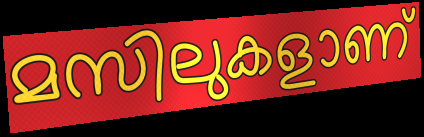
മസിലുകളാണ്